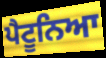
ਪੈਟੂਨਿਆ